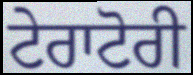
ਟੇਰਾਟੋਰੀ